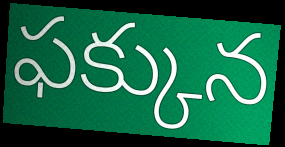
ఫక్కున